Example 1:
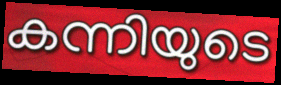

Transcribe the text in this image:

കന്നിയുടെ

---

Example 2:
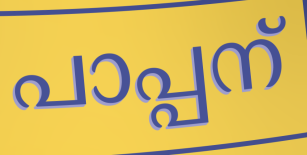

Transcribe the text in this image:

പാപ്പന്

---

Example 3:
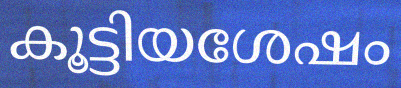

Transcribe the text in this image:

കൂട്ടിയശേഷം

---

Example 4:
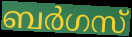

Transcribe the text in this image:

ബർഗസ്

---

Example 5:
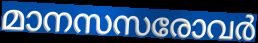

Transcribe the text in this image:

മാനസസരോവർ